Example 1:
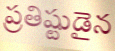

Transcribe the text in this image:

ప్రతిష్టుడైన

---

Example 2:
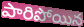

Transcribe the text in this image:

పారిపోయిన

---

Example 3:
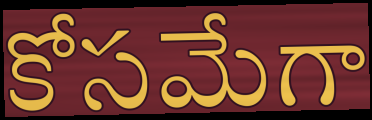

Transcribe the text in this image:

కోసమేగా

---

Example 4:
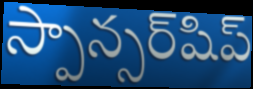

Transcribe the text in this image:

స్పాన్సర్‌షిప్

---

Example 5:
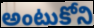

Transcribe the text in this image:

అంటుకోని